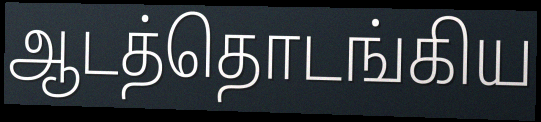
ஆடத்தொடங்கிய